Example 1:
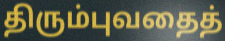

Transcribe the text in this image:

திரும்புவதைத்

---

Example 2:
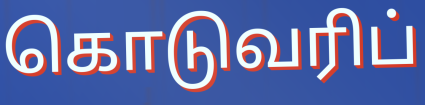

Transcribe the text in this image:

கொடுவரிப்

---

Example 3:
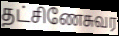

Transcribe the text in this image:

தட்சிணேசுவர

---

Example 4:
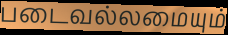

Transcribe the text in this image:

படைவல்லமையும்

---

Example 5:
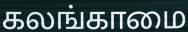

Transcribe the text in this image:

கலங்காமை